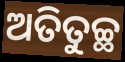
ଅତିତୁଚ୍ଛ